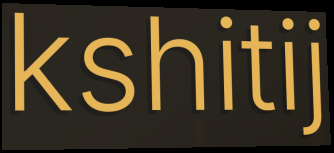
kshitij